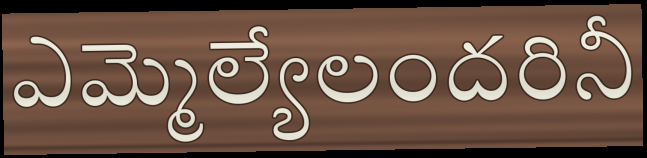
ఎమ్మెల్యేలందరినీ